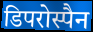
डिपरोस्पैन